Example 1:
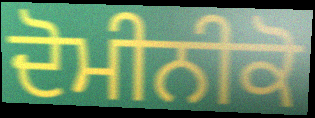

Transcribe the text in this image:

ਦੋਮੀਨੀਕੋ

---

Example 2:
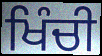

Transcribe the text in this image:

ਖਿੰਚੀ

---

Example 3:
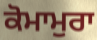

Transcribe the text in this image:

ਕੋਮਾਮੁਰਾ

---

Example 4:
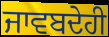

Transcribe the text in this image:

ਜਾਵਬਦੇਹੀ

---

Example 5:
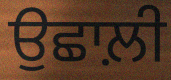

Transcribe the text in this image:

ਉਛਾਲ਼ੀ